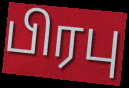
பிரபு